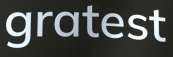
gratest